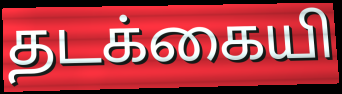
தடக்கையி